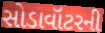
સોડાવૉટરની